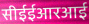
सीईईआरआई